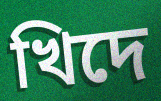
খিদে